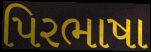
પિરભાષા